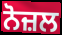
ਨੋਜ਼ਲ